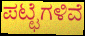
ಪಟ್ಟೆಗಳಿವೆ